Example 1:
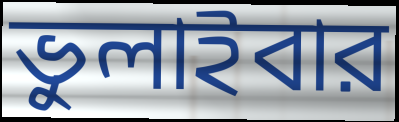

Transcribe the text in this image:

ভুলাইবার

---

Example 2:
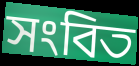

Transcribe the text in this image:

সংবিত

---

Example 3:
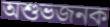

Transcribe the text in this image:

অশুভজনক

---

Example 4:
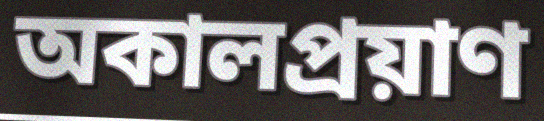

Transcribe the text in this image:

অকালপ্রয়াণ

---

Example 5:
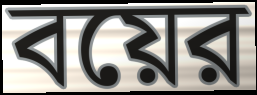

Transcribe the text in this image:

বয়ের